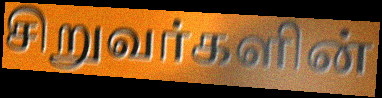
சிறுவர்களின்